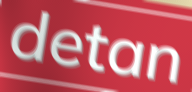
detan